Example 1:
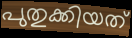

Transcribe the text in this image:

പുതുക്കിയത്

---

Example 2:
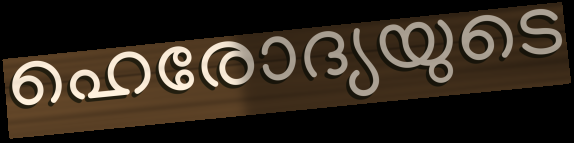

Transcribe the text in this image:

ഹെരോദ്യയുടെ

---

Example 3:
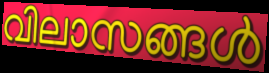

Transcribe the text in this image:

വിലാസങ്ങൾ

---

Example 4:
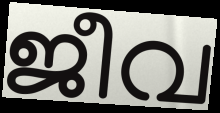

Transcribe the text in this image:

ജീവ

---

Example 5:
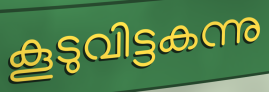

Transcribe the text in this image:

കൂടുവിട്ടകന്നു